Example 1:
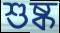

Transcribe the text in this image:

শুষ্ক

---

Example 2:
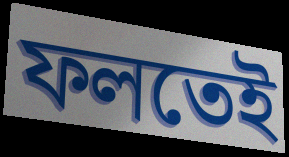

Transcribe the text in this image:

ফলতেই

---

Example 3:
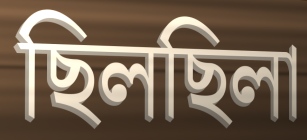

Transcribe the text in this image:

ছিলছিলা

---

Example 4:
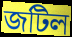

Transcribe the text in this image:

জটিল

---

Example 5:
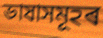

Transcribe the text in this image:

ভাষাসমূহৰ